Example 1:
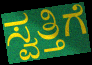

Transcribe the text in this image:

ಸ್ವತ್ತಿಗೆ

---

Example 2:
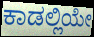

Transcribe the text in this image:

ಕಾಡಲ್ಲಿಯೇ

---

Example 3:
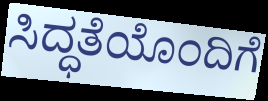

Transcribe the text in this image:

ಸಿದ್ಧತೆಯೊಂದಿಗೆ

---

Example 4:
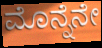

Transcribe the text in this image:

ಮೊನ್ನೆನೇ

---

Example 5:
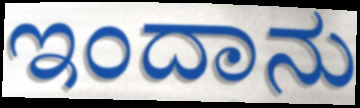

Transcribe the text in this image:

ಇಂದಾನು